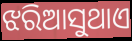
ଝରିଆସୁଥାଏ